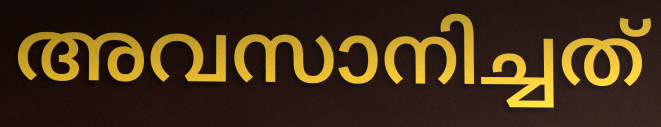
അവസാനിച്ചത്